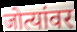
जोत्यांवर